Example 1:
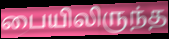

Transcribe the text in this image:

பையிலிருந்த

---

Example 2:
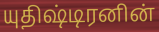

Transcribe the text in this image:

யுதிஷ்டிரனின்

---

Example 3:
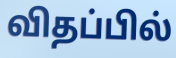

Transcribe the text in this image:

விதப்பில்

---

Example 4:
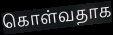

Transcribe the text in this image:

கொள்வதாக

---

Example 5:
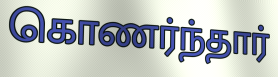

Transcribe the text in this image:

கொணர்ந்தார்